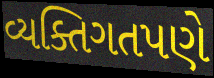
વ્યક્તિગતપણે